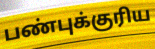
பண்புக்குரிய